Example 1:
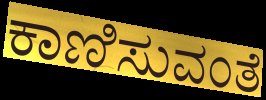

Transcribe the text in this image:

ಕಾಣಿಸುವಂತೆ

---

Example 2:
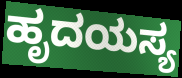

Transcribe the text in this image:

ಹೃದಯಸ್ಯ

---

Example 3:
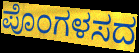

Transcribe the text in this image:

ಪೊಂಗಳಸದ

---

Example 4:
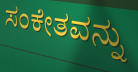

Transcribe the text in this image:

ಸಂಕೇತವನ್ನು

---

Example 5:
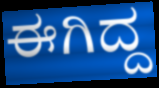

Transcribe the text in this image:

ಈಗಿದ್ದ